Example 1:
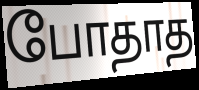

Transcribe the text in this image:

போதாத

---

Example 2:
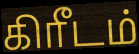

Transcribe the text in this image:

கிரீடம்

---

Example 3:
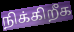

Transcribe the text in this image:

நிக்கிறீக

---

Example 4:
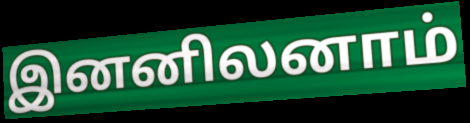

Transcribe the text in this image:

இனனிலனாம்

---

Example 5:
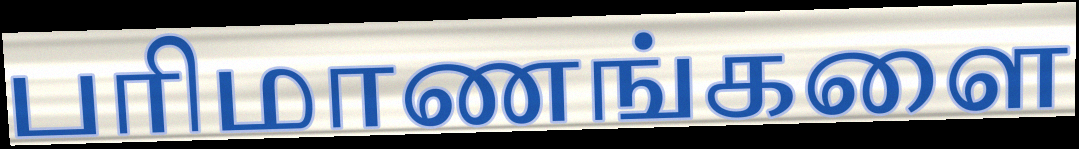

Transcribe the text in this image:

பரிமாணங்களை